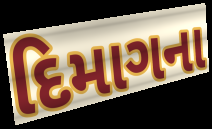
દિમાગના